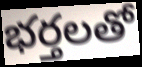
భర్తలతో